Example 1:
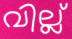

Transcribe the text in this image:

വില്ല്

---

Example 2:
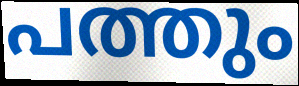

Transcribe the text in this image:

പത്തും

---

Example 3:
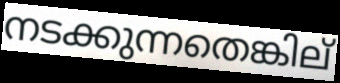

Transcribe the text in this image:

നടക്കുന്നതെങ്കില്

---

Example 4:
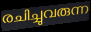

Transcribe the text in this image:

രചിച്ചുവരുന്ന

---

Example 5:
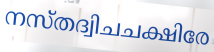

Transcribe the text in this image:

നസ്തദ്വിചചക്ഷിരേ